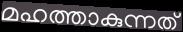
മഹത്താകുന്നത്